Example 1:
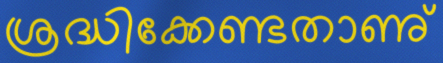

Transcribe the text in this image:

ശ്രദ്ധിക്കേണ്ടതാണു്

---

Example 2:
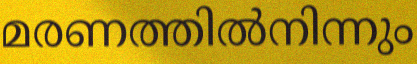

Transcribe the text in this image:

മരണത്തിൽനിന്നും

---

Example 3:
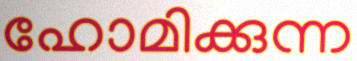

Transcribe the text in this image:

ഹോമിക്കുന്ന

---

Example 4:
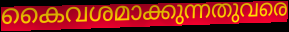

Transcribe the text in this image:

കൈവശമാക്കുന്നതുവരെ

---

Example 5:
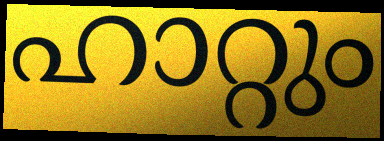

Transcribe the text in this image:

ഹാറ്റും